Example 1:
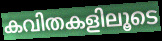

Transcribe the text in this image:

കവിതകളിലൂടെ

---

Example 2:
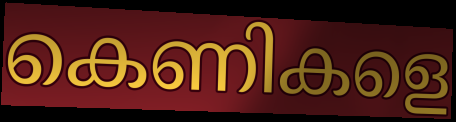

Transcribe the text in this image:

കെണികളെ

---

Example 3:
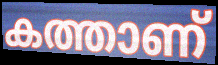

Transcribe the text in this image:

കത്താണ്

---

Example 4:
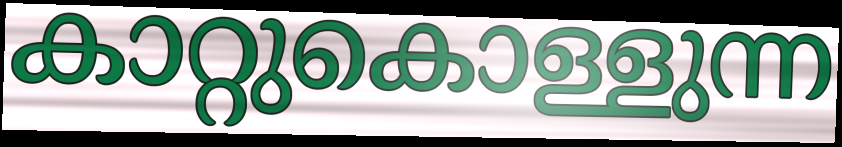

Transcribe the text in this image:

കാറ്റുകൊള്ളുന്ന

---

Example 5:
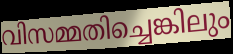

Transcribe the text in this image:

വിസമ്മതിച്ചെങ്കിലും